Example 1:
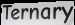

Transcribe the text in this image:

Ternary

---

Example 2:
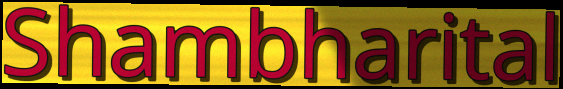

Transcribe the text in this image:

Shambharital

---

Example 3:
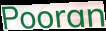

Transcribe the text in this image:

Pooran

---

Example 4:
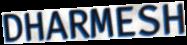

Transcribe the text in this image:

DHARMESH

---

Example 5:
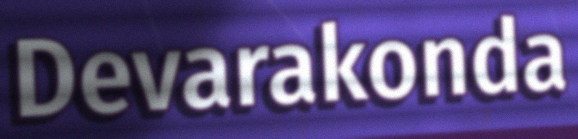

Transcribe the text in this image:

Devarakonda